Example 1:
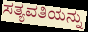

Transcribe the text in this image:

ಸತ್ಯವತಿಯನ್ನು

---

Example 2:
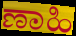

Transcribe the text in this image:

ಣಾಹಿ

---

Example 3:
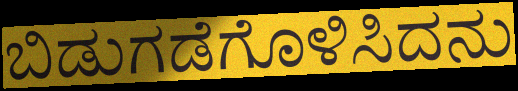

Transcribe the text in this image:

ಬಿಡುಗಡೆಗೊಳಿಸಿದನು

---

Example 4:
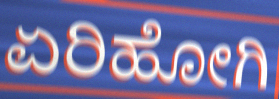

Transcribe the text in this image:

ಏರಿಹೋಗಿ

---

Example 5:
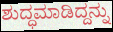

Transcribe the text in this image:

ಶುದ್ಧಮಾಡಿದ್ದನ್ನು